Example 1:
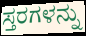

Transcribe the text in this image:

ಸ್ತರಗಳನ್ನು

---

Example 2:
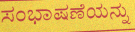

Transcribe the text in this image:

ಸಂಭಾಷಣೆಯನ್ನು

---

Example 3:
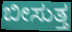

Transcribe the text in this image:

ಬೀಸುತ್ತ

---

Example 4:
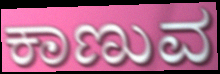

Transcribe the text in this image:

ಕಾಣುವ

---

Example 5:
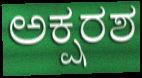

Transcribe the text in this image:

ಅಕ್ಷರಶ